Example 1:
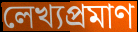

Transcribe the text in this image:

লেখ্যপ্রমাণ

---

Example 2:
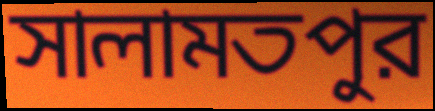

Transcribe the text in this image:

সালামতপুর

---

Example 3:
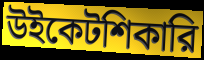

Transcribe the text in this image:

উইকেটশিকারি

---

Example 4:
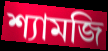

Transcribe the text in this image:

শ্যামজি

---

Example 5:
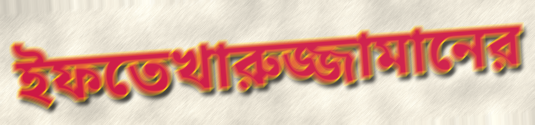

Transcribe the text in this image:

ইফতেখারুজ্জামানের